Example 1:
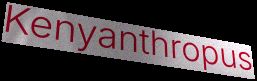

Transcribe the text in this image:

Kenyanthropus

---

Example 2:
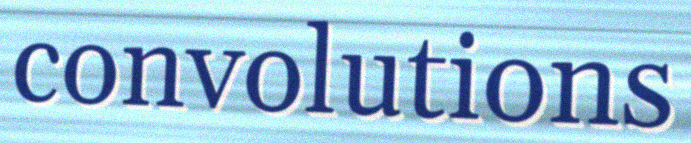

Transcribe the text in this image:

convolutions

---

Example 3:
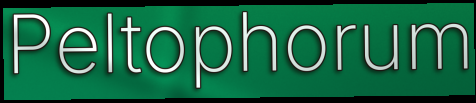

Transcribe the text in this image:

Peltophorum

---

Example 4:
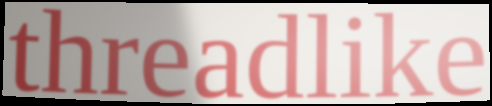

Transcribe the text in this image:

threadlike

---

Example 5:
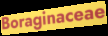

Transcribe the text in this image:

Boraginaceae